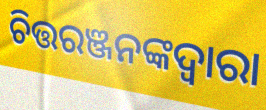
ଚିତ୍ତରଞ୍ଜନଙ୍କଦ୍ଵାରା